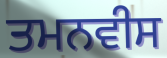
ਤਮਨਵੀਸ